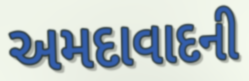
અમદાવાદની